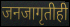
जनजागृतीही